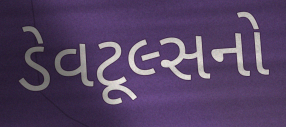
ડેવટૂલ્સનો